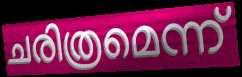
ചരിത്രമെന്ന്